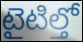
టైటిల్తో